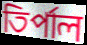
তিৰ্পাল